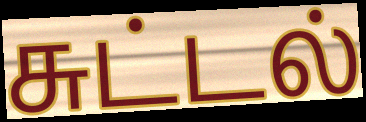
சுட்டல்